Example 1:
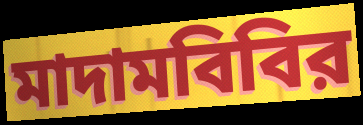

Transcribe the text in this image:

মাদামবিবির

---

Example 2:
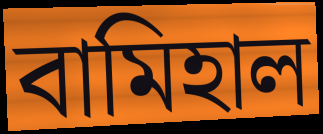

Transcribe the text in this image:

বামিহাল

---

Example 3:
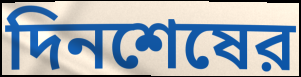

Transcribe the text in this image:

দিনশেষের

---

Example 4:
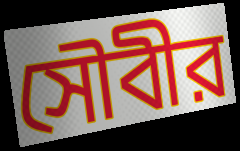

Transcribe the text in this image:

সৌবীর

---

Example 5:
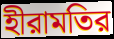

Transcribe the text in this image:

হীরামতির